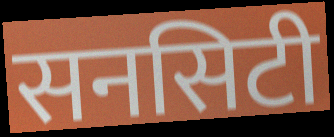
सनसिटी